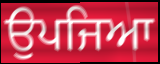
ਉਪਜਿਆ